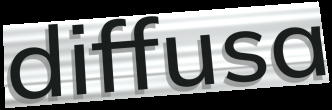
diffusa